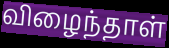
விழைந்தாள்